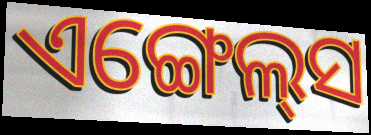
ଏଙ୍ଗେଲ୍‌ସ